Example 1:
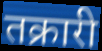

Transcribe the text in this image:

तक्रारी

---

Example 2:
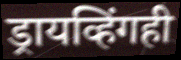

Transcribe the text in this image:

ड्रायव्हिंगही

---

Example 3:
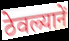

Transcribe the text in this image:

ठेवल्यानें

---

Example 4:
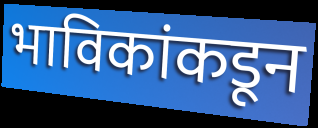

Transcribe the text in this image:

भाविकांकडून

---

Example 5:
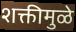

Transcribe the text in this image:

शक्तीमुळे